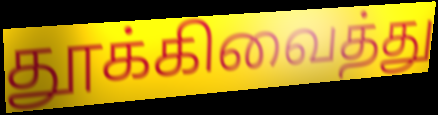
தூக்கிவைத்து